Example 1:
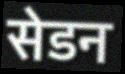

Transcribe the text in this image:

सेडन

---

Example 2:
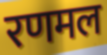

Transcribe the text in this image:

रणमल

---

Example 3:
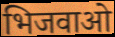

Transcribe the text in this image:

भिजवाओ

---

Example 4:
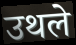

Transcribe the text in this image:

उथले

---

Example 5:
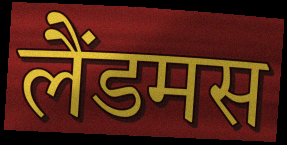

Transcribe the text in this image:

लैंडमस